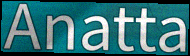
Anatta